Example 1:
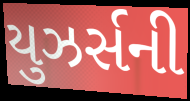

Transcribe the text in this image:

યુઝર્સની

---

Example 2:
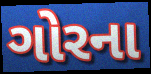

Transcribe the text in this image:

ગોરના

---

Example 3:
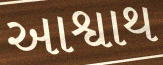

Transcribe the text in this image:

આશ્વાથ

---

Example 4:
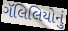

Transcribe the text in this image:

ગૅલિલિયોનું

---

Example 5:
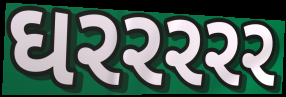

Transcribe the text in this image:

ઘરરરરર